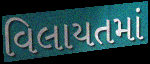
વિલાયતમાં